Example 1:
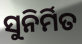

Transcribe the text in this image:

ସୁନିର୍ମିତ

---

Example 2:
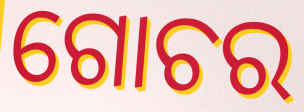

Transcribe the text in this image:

ଗୋଚର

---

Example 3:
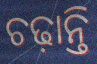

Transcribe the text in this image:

ଚଢ଼ାନ୍ତି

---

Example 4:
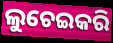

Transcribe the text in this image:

ଲୁଚେଇକରି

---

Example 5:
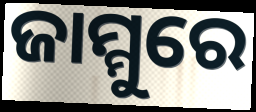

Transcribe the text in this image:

ଜାମ୍ମୁରେ